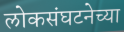
लोकसंघटनेच्या